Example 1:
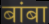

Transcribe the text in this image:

बांबा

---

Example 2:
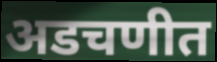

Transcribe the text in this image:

अडचणीत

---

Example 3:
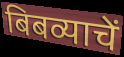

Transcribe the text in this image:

बिबव्याचें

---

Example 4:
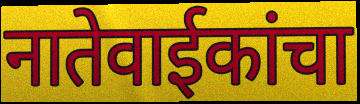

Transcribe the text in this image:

नातेवाईकांचा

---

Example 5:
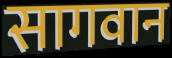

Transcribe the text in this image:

सागवान